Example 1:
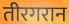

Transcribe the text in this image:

तीरगरान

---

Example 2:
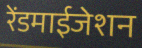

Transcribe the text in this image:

रेंडमाईजेशन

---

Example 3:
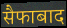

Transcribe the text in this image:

सैफाबाद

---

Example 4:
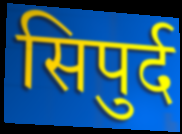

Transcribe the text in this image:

सिपुर्द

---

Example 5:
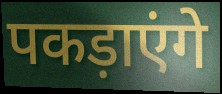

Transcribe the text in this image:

पकड़ाएंगे